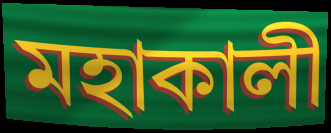
মহাকালী